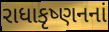
રાધાકૃષ્ણનનાં